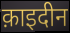
क़ाइदीन